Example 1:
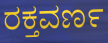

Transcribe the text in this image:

ರಕ್ತವರ್ಣ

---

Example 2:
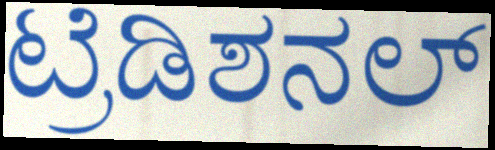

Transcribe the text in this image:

ಟ್ರೆಡಿಶನಲ್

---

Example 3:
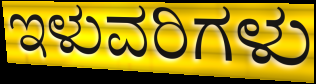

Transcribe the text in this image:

ಇಳುವರಿಗಳು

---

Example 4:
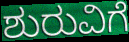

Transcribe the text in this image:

ಶುರುವಿಗೆ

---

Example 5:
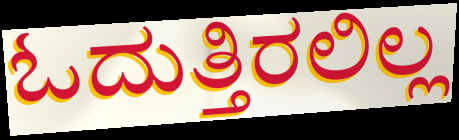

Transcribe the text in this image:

ಓದುತ್ತಿರಲಿಲ್ಲ